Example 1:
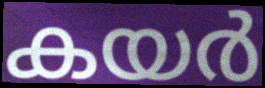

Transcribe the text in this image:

കയർ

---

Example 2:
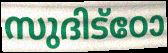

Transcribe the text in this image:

സുദിട്ഠോ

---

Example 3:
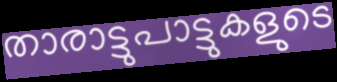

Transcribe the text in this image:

താരാട്ടുപാട്ടുകളുടെ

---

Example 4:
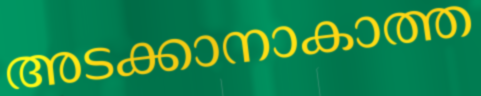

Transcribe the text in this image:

അടക്കാനാകാത്ത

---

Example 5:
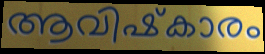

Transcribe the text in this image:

ആവിഷ്‌കാരം